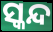
ସ୍କନ୍ଦ